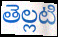
తెల్లటి